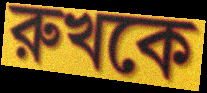
রুখকে